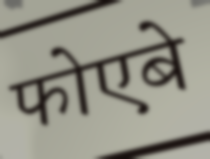
फोएबे